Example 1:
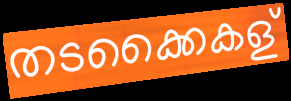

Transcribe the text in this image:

തടക്കൈകള്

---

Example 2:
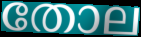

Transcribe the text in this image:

തോല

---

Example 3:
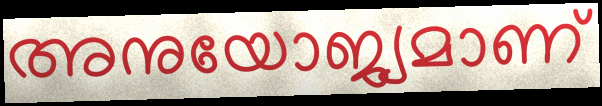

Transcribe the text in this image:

അനുയോജ്യമാണ്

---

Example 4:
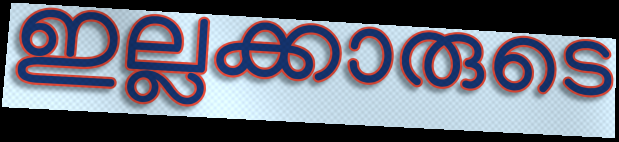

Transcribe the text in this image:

ഇല്ലക്കാരുടെ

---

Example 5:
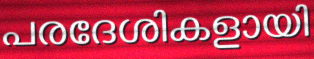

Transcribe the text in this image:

പരദേശികളായി